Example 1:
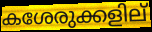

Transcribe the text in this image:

കശേരുക്കളില്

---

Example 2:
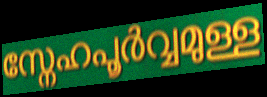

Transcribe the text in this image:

സ്നേഹപൂർവ്വമുള്ള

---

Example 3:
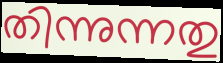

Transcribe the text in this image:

തിന്നുന്നതു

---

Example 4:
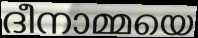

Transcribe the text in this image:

ദീനാമ്മയെ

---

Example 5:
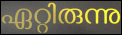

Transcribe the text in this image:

ഏറ്റിരുന്നു